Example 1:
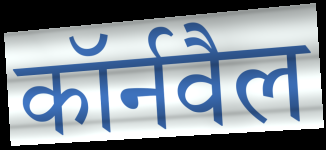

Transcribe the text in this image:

कॉर्नवैल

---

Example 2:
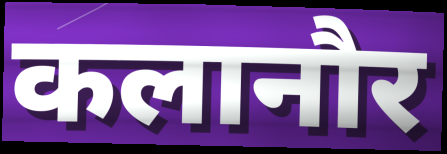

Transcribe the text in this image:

कलानौर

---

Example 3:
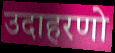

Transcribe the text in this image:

उदाहरणो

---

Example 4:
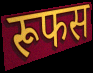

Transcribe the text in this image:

रूफस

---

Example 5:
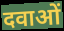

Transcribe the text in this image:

दवाओं